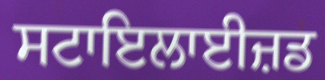
ਸਟਾਇਲਾਈਜ਼ਡ